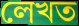
লেখত